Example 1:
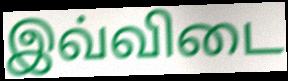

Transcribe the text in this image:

இவ்விடை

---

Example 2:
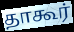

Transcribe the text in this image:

தாகூர்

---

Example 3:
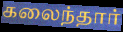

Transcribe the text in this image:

கலைந்தார்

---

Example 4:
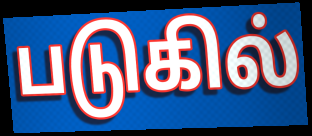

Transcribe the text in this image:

படுகில்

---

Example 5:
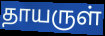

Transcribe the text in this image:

தாயருள்